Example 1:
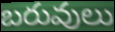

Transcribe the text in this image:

బరువులు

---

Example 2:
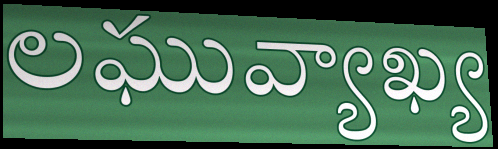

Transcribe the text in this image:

లఘువ్యాఖ్య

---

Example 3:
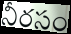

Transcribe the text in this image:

నీరసం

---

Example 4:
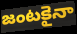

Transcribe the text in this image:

జంటకైనా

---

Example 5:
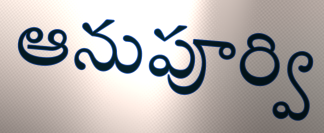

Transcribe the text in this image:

ఆనుపూర్వి